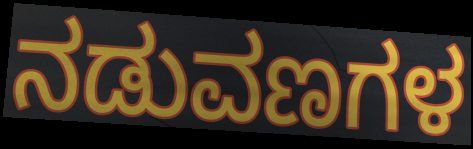
ನಡುವಣಗಳ